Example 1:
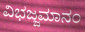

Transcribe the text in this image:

ವಿಭಜ್ಜಮಾನಂ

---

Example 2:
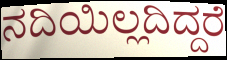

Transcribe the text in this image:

ನದಿಯಿಲ್ಲದಿದ್ದರೆ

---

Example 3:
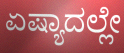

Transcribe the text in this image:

ಏಷ್ಯಾದಲ್ಲೇ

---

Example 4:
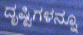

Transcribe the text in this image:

ದೃಷ್ಟಿಗಳನ್ನೂ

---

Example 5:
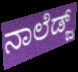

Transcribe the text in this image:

ನಾಲೆಡ್ಜ್